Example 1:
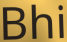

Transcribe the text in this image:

Bhi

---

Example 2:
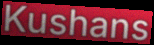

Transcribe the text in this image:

Kushans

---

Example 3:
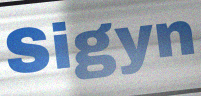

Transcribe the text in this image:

Sigyn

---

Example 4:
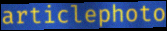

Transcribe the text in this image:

articlephoto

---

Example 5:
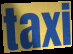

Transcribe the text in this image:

taxi